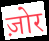
ज़ोर